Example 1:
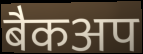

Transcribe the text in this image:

बैकअप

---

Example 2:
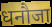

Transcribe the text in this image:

धनौजा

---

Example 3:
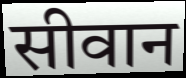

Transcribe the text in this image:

सीवान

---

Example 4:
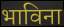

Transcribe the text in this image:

भाविना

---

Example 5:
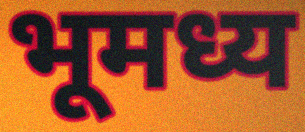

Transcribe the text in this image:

भूमध्य